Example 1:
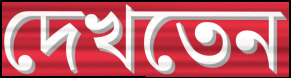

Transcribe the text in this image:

দেখতেন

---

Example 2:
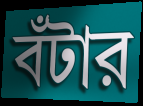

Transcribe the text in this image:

বঁটার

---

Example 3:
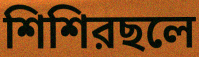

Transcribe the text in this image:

শিশিরছলে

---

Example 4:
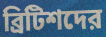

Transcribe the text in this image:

ব্রিটিশদের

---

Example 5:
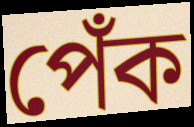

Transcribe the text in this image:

পেঁক